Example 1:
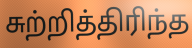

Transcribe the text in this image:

சுற்றித்திரிந்த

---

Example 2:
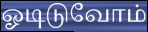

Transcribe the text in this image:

ஓடிடுவோம்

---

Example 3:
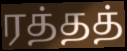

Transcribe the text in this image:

ரத்தத்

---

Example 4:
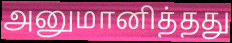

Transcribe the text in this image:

அனுமானித்தது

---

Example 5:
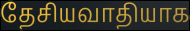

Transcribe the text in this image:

தேசியவாதியாக